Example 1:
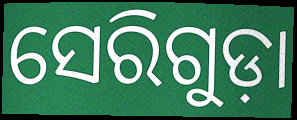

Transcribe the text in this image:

ସେରିଗୁଡ଼ା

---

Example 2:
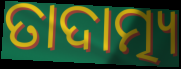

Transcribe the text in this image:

ତାଦାତ୍ମ୍ୟ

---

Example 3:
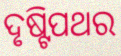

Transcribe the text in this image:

ଦୃଷ୍ଟିପଥର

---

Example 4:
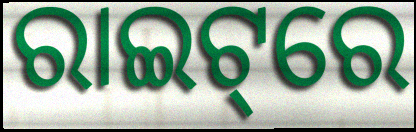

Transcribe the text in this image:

ରାଇଟ୍‌ରେ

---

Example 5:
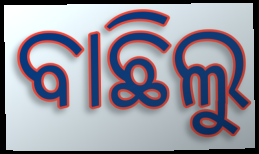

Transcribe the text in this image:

ବାଛିଲୁ